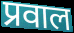
प्रवाल